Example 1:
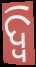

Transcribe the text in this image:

ଦ୍ଵି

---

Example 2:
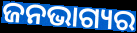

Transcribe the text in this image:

ଜନଭାଗ୍ୟର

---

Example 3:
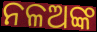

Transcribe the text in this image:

ନଳଅଙ୍କ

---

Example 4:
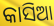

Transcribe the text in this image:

କାସିଆ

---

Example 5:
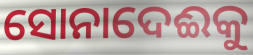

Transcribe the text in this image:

ସୋନାଦେଈକୁ